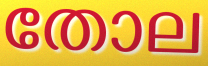
തോല